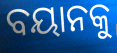
ବୟାନକୁ